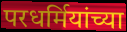
परधर्मियांच्या